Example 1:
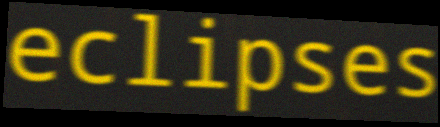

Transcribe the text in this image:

eclipses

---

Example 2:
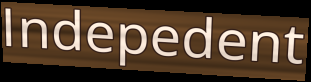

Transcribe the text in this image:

Indepedent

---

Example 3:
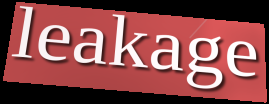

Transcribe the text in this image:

leakage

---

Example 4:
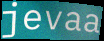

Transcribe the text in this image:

jevaa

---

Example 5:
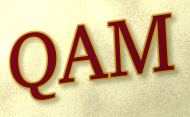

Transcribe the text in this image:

QAM